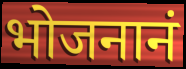
भोजनानं